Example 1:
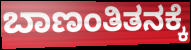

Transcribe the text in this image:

ಬಾಣಂತಿತನಕ್ಕೆ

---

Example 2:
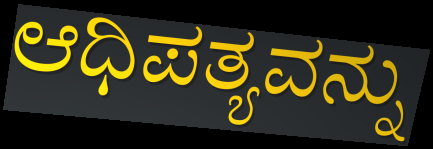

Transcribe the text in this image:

ಆಧಿಪತ್ಯವನ್ನು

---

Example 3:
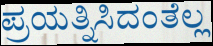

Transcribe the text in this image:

ಪ್ರಯತ್ನಿಸಿದಂತೆಲ್ಲ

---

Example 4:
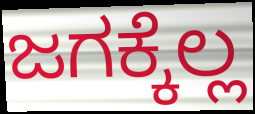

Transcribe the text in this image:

ಜಗಕ್ಕೆಲ್ಲ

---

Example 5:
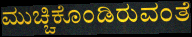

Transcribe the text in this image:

ಮುಚ್ಚಿಕೊಂಡಿರುವಂತೆ